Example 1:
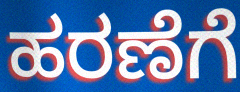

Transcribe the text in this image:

ಹರಣೆಗೆ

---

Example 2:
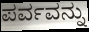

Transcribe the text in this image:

ಪರ್ವವನ್ನು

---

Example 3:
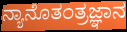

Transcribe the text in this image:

ನ್ಯಾನೊತಂತ್ರಜ್ಞಾನ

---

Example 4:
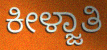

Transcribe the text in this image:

ಕೀಳ್ಜಾತಿ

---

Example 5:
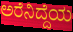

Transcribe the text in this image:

ಅರೆನಿದ್ದೆಯ